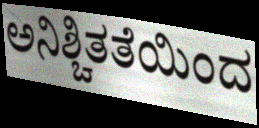
ಅನಿಶ್ಚಿತತೆಯಿಂದ